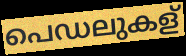
പെഡലുകള്